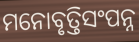
ମନୋବୃତ୍ତିସଂପନ୍ନ